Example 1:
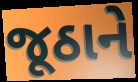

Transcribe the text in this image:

જૂઠાને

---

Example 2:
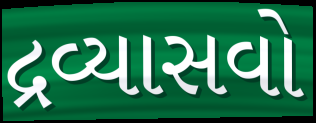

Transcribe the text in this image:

દ્રવ્યાસવો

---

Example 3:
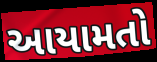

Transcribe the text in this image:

આયામતો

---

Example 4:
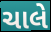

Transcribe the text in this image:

ચાલે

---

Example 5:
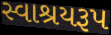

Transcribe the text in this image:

સ્વાશ્રયરૂપ